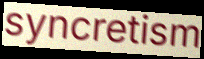
syncretism